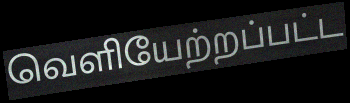
வெளியேற்றப்பட்ட